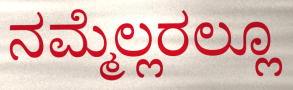
ನಮ್ಮೆಲ್ಲರಲ್ಲೂ